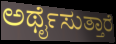
ಅರ್ಥೈಸುತ್ತಾರೆ